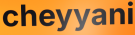
cheyyani